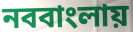
নববাংলায়